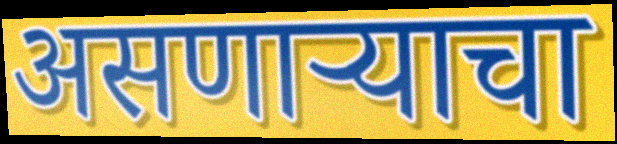
असणाऱ्याचा